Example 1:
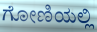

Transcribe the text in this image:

ಗೋಣಿಯಲ್ಲಿ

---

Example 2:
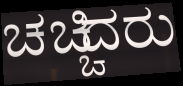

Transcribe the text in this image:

ಚಚ್ಚಿದರು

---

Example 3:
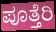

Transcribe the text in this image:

ಪೂತ್ತೆರಿ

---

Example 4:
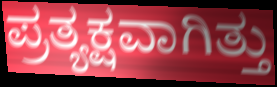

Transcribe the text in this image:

ಪ್ರತ್ಯಕ್ಷವಾಗಿತ್ತು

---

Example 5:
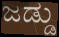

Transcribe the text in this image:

ಜಡ್ಡು